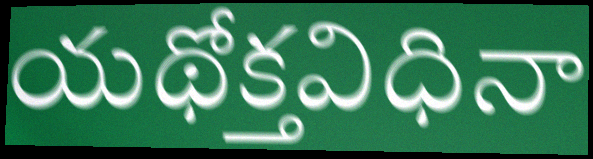
యథోక్తవిధినా